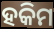
ହକିମ